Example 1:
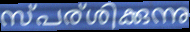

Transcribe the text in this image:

സ്പര്ശിക്കുന്നു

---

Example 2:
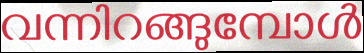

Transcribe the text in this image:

വന്നിറങ്ങുമ്പോൾ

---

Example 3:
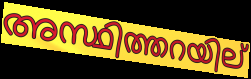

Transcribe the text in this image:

അസ്ഥിത്തറയില്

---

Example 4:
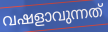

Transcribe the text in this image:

വഷളാവുന്നത്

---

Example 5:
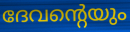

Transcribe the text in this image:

ദേവന്റെയും